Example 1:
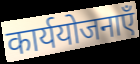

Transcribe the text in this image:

कार्ययोजनाएँ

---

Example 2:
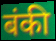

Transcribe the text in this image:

बंकी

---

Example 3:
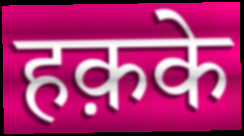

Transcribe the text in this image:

हक़के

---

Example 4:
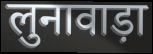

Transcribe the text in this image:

लुनावाड़ा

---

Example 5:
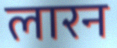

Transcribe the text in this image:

लारन